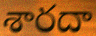
శారదా